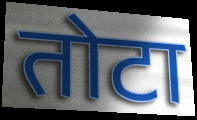
तोटा